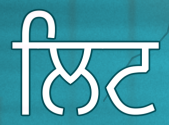
ਲਿਟ